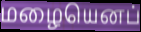
மழையெனப்